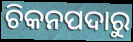
ଚିକନପଦାରୁ